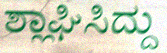
ಶ್ಲಾಘಿಸಿದ್ದು